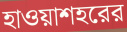
হাওয়াশহরের